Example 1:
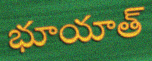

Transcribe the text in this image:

భూయాత్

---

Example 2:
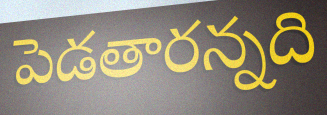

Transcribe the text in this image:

పెడతారన్నది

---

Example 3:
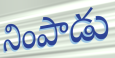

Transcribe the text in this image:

నింపాడు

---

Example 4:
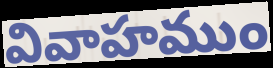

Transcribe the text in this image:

వివాహముం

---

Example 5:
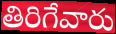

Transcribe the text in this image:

తిరిగేవారు